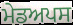
ਮੇਡਅਪਸ